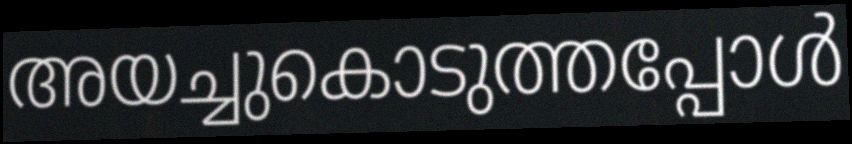
അയച്ചുകൊടുത്തപ്പോൾ